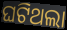
ଘଟିଥଲା